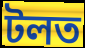
টলত